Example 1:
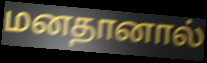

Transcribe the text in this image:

மனதானால்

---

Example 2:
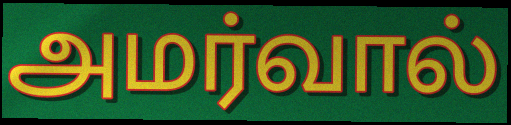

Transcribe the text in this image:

அமர்வால்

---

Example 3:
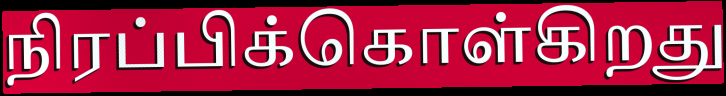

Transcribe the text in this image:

நிரப்பிக்கொள்கிறது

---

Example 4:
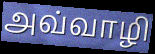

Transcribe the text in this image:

அவ்வாழி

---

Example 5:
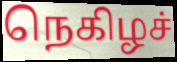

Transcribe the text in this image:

நெகிழச்